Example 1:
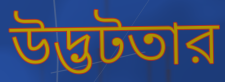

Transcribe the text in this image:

উদ্ভটতার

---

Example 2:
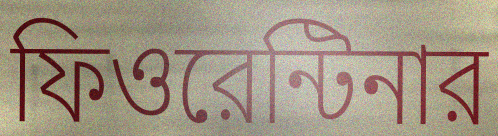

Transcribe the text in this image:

ফিওরেন্টিনার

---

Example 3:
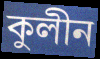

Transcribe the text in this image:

কুলীন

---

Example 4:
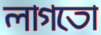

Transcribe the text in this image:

লাগতো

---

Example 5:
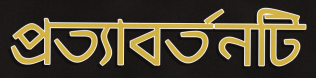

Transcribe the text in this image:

প্রত্যাবর্তনটি